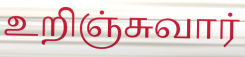
உறிஞ்சுவார்